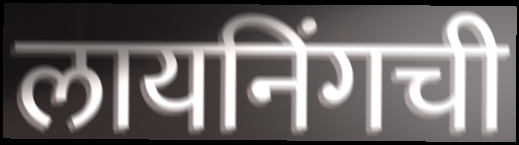
लायनिंगची